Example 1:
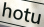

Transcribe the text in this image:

hotu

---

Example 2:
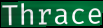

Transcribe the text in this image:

Thrace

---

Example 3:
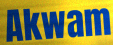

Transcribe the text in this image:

Akwam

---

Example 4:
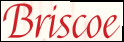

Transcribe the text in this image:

Briscoe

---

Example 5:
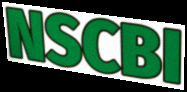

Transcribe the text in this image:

NSCBI